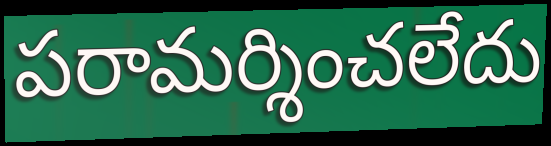
పరామర్శించలేదు